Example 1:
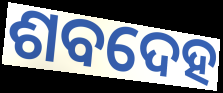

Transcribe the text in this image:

ଶବଦେହ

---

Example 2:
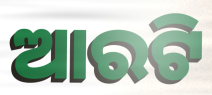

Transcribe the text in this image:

ଆରଟି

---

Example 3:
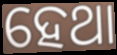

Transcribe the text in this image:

ହେଥା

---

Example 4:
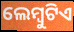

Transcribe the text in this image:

ଲେମ୍ବୁଟିଏ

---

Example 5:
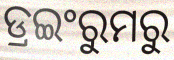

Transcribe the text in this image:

ଡ୍ରଇଂରୁମରୁ